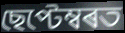
ছেপ্টেম্বৰত